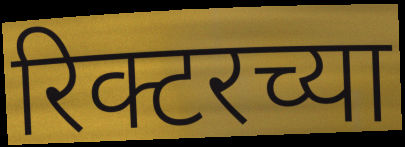
रिक्टरच्या